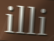
illi